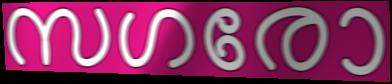
സഗരോ